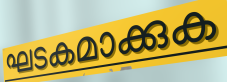
ഘടകമാക്കുക